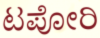
ಟಪೋರಿ